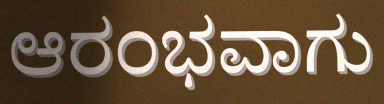
ಆರಂಭವಾಗು